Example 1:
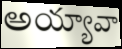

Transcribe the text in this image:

అయ్యావా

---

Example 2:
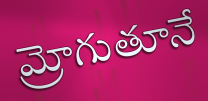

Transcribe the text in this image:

మ్రోగుతూనే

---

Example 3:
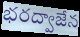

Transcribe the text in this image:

భరద్వాజేన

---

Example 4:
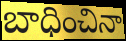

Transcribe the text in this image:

బాధించినా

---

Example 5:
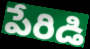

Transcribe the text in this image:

పేరిడి